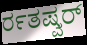
ರ್ರತಷ್ವರ್